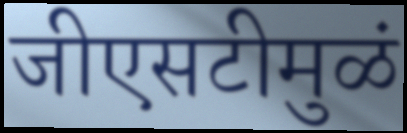
जीएसटीमुळं